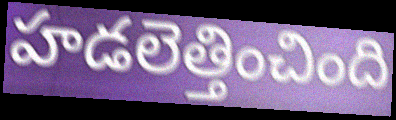
హడలెత్తించింది